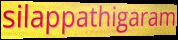
silappathigaram